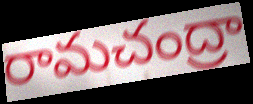
రామచంద్రా